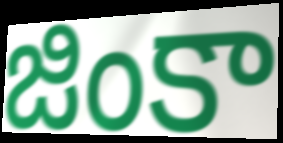
జింకా